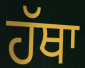
ਹੱਥਾ